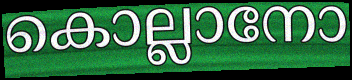
കൊല്ലാനോ